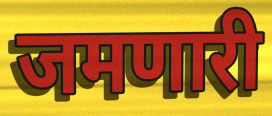
जमणारी